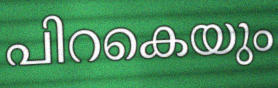
പിറകെയും